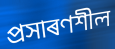
প্ৰসাৰণশীল